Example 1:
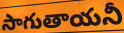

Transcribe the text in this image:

సాగుతాయనీ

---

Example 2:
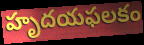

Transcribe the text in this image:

హృదయఫలకం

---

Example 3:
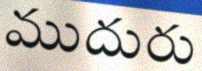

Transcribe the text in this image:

ముదురు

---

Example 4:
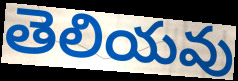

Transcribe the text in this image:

తెలియవు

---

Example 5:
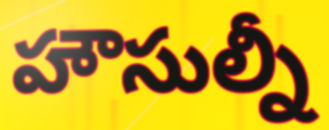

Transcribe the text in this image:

హౌసుల్నీ